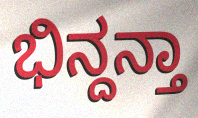
ಭಿನ್ದನ್ತಾ